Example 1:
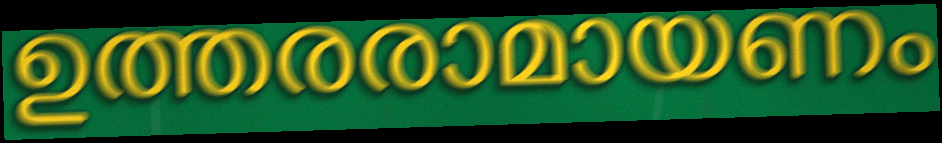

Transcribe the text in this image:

ഉത്തരരാമായണം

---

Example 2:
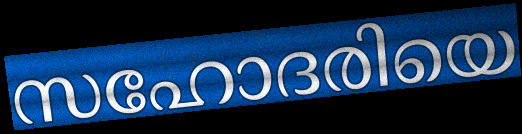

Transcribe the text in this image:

സഹോദരിയെ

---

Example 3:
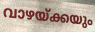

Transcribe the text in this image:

വാഴയ്ക്കയും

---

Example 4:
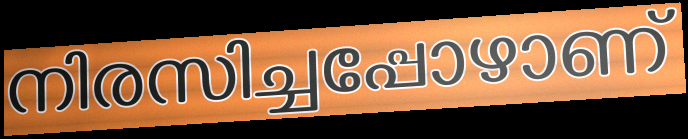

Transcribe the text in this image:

നിരസിച്ചപ്പോഴാണ്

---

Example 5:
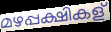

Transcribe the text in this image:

മഴപ്പക്ഷികള്